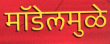
मॉडेलमुळे